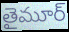
తైమూర్